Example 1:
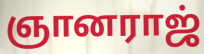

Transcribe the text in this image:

ஞானராஜ்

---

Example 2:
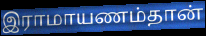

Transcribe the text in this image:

இராமாயணம்தான்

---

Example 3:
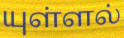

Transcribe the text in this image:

யுள்ளல்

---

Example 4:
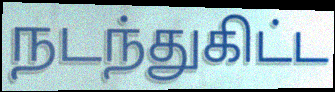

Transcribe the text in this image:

நடந்துகிட்ட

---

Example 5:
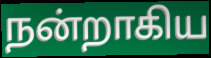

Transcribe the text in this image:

நன்றாகிய